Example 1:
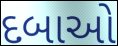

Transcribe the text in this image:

દબાઓ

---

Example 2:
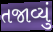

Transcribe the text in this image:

તજાવ્યું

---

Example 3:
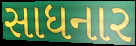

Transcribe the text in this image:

સાધનાર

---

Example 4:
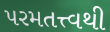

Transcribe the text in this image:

પરમતત્ત્વથી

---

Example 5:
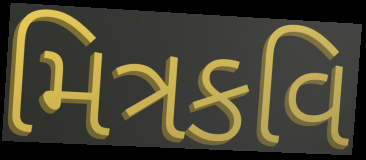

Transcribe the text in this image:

મિત્રકવિ